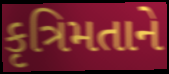
કૃત્રિમતાને